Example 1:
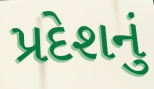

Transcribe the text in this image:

પ્રદેશનું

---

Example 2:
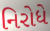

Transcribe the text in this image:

નિરોધે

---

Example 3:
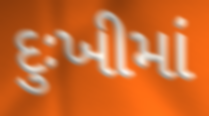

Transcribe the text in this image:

દુઃખીમાં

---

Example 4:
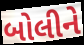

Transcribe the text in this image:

બોલીને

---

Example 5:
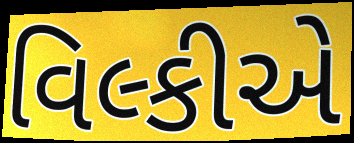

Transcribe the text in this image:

વિલ્કીએ